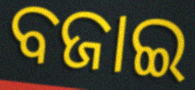
ବଜାଇ